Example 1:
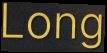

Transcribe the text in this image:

Long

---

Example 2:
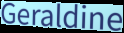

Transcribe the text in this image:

Geraldine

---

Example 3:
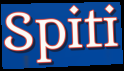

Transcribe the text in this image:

Spiti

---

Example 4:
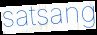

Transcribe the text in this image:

satsang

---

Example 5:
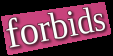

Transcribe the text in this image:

forbids